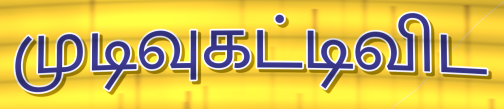
முடிவுகட்டிவிட